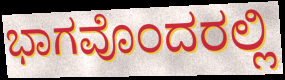
ಭಾಗವೊಂದರಲ್ಲಿ